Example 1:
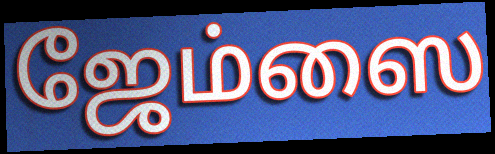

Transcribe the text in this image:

ஜேம்ஸை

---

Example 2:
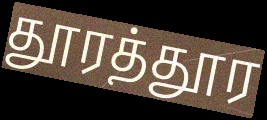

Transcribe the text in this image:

தூரத்தூர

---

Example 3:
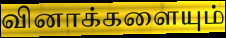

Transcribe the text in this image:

வினாக்களையும்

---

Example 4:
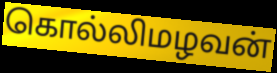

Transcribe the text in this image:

கொல்லிமழவன்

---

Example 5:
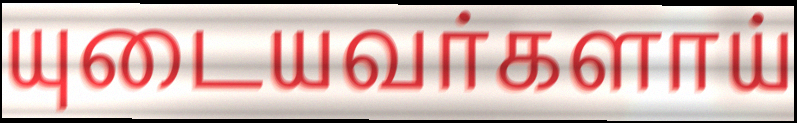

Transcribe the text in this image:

யுடையவர்களாய்